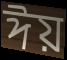
ঈয়